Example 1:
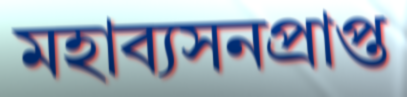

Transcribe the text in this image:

মহাব্যসনপ্রাপ্ত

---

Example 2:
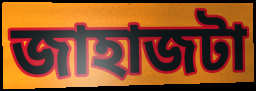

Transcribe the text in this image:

জাহাজটা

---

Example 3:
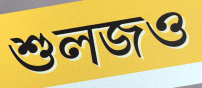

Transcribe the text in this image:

শুলজও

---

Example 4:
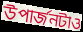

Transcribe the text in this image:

উপার্জনটাও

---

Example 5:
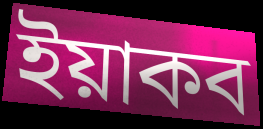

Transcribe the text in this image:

ইয়াকব